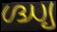
ഗ്ദ്ധ്യ